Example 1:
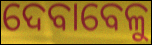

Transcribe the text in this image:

ଦେବାବେଳୁ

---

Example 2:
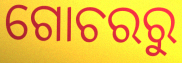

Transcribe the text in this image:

ଗୋଚରରୁ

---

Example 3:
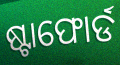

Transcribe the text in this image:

ଷ୍ଟାଫୋର୍ଡ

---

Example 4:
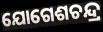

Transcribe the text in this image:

ଯୋଗେଶଚନ୍ଦ୍ର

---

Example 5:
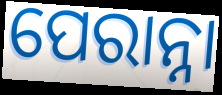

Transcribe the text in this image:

ପେରାନ୍ନା